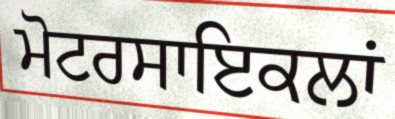
ਮੋਟਰਸਾਇਕਲਾਂ